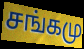
சங்கமு